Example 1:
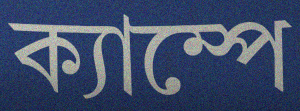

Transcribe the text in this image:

ক্যাম্পে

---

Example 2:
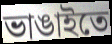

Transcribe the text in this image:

ভাঙাইতে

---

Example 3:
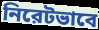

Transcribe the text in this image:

নিরেটভাবে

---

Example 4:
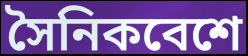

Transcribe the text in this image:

সৈনিকবেশে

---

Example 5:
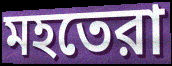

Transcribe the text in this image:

মহতেরা